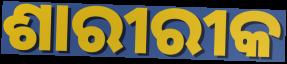
ଶାରୀରୀକ